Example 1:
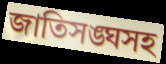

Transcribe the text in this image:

জাতিসঙ্ঘসহ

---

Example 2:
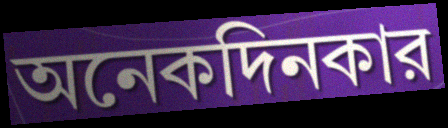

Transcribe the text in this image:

অনেকদিনকার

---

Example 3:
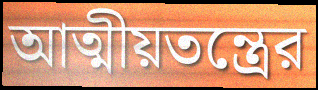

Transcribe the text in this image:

আত্মীয়তন্ত্রের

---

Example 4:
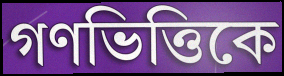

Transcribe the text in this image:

গণভিত্তিকে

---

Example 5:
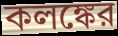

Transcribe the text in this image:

কলঙ্কের